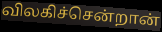
விலகிச்சென்றான்